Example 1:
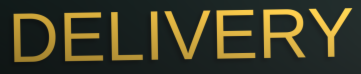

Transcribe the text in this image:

DELIVERY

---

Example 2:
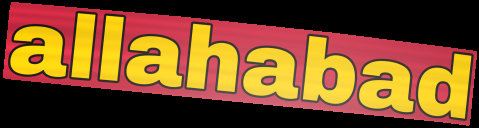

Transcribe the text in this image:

allahabad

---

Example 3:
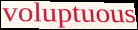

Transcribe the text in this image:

voluptuous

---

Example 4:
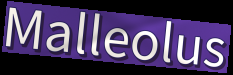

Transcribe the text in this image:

Malleolus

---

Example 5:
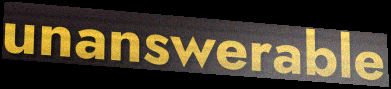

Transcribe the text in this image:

unanswerable